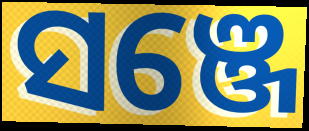
ସଞ୍ଜେ